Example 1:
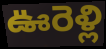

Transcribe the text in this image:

ఊరెళ్లి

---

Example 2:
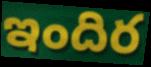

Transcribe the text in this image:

ఇందిర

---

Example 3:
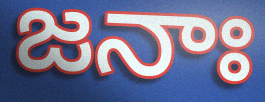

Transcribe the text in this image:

జనాః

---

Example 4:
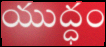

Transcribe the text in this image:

యుద్ధం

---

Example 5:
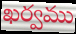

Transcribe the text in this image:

ఖర్వము